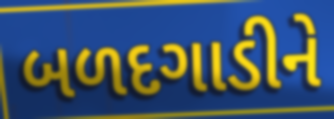
બળદગાડીને